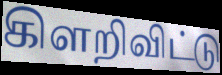
கிளறிவிட்டு